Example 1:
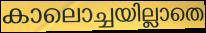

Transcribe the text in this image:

കാലൊച്ചയില്ലാതെ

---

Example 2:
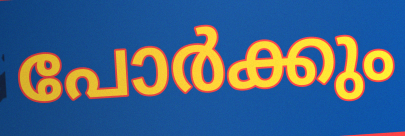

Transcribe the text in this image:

പോർക്കും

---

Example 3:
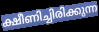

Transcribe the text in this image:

ക്ഷീണിച്ചിരിക്കുന്ന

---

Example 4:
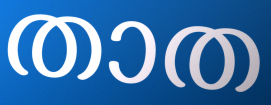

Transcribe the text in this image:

താത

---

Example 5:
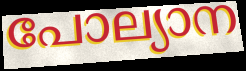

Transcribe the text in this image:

പോല്യാന